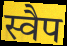
स्वैप